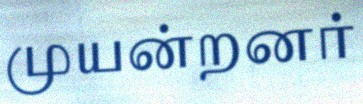
முயன்றனர்